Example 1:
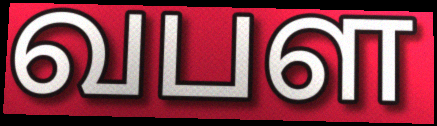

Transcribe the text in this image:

வபள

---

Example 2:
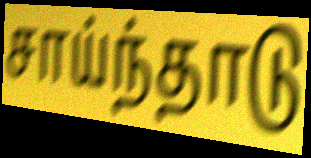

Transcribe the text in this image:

சாய்ந்தாடு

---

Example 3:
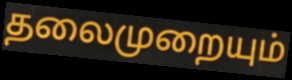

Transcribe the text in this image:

தலைமுறையும்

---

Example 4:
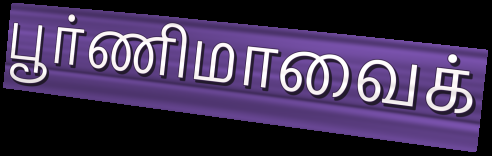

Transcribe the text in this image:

பூர்ணிமாவைக்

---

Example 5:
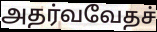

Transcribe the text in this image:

அதர்வவேதச்